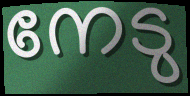
നേടു